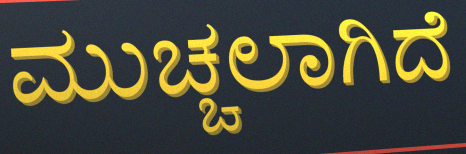
ಮುಚ್ಚಲಾಗಿದೆ